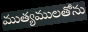
ముత్యములతోను